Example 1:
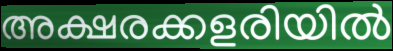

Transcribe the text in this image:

അക്ഷരക്കളരിയിൽ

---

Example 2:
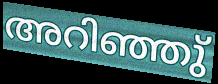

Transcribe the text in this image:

അറിഞ്ഞു്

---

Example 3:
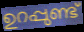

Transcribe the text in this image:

ഉറപ്പുണ്ട്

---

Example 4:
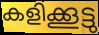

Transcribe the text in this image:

കളിക്കൂട്ടു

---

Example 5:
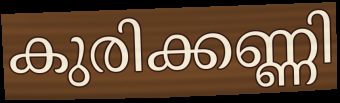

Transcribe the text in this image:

കുരിക്കണ്ണി